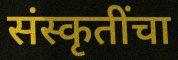
संस्कृतींचा